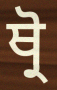
ਥ੍ਰੋ